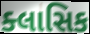
ક્લાસિક